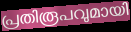
പ്രതിരൂപവുമായി